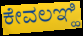
ಕೇವಲಞ್ಹಿ